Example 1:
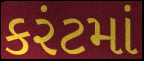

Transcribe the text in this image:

કરંટમાં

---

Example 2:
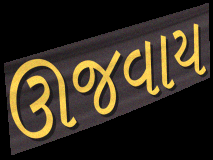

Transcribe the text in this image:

ઊજવાય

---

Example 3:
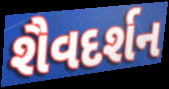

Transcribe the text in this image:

શૈવદર્શન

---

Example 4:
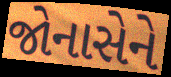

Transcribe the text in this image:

જોનાસેને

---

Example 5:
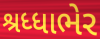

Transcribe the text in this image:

શ્રધ્ધાભેર